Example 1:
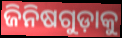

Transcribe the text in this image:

ଜିନିଷଗୁଡ଼ାକୁ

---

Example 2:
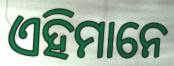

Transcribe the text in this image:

ଏହିମାନେ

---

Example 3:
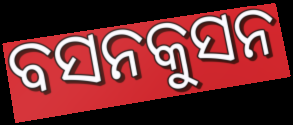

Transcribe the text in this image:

ବସନକୁସନ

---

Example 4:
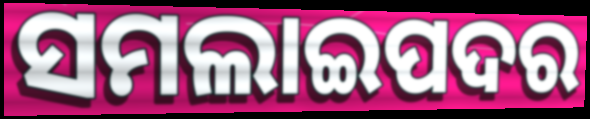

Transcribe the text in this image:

ସମଲାଇପଦର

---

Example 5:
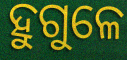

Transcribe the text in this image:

ହୁଗୁଳେ